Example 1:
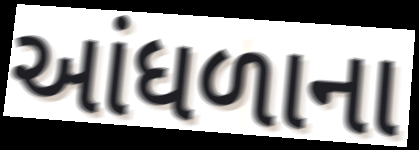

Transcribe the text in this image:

આંધળાના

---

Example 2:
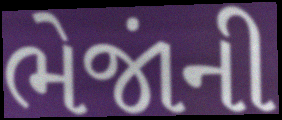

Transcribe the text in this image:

ભેજાંની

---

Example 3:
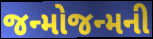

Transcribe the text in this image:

જન્મોજન્મની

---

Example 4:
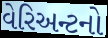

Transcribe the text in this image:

વેરિઅન્ટનો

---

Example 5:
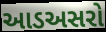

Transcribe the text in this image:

આડઅસરો